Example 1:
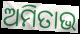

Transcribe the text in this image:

ଅମିତାଭ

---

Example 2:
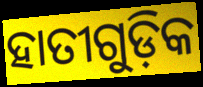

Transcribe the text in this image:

ହାତୀଗୁଡ଼ିକ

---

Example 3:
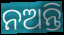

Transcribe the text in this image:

ନଅନ୍ତି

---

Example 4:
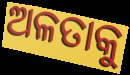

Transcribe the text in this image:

ଅଳତାକୁ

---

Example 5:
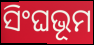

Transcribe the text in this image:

ସିଂଘଭୂମ